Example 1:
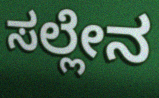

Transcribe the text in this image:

ಸಲ್ಲೇನ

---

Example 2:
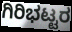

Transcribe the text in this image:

ಗಿರಿಭಟ್ಟರ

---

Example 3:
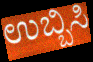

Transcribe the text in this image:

ಉಬ್ಬಿಸಿ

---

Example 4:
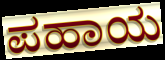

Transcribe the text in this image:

ಪಹಾಯ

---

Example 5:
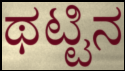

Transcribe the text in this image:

ಥಟ್ಟಿನ